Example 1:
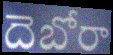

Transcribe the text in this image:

దెబోరా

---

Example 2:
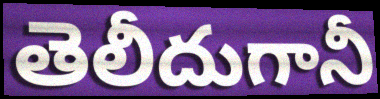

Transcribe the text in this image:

తెలీదుగానీ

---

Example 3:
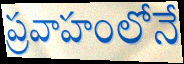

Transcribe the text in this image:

ప్రవాహంలోనే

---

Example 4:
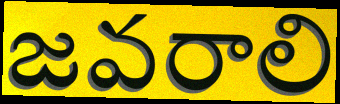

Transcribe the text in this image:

జవరాలి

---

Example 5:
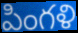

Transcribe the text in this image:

పింగళి